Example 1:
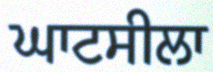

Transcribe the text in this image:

ਘਾਟਸੀਲਾ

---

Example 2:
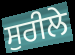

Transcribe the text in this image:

ਸੁਰੀਲੇ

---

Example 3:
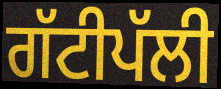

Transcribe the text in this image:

ਗੱਟੀਪੱਲੀ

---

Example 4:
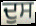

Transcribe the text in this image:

ਦੁਸ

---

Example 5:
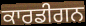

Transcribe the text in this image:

ਕਾਰਡੀਗਨ